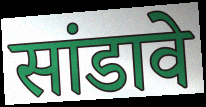
सांडावे